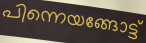
പിന്നെയങ്ങോട്ട്